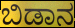
ಬಿಡಾನ